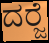
ದರ‍್ಜೆ